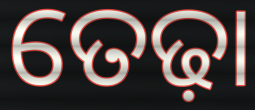
ତେଢ଼ା